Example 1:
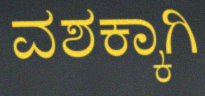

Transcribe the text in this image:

ವಶಕ್ಕಾಗಿ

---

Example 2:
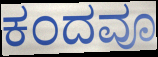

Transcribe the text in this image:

ಕಂದವೂ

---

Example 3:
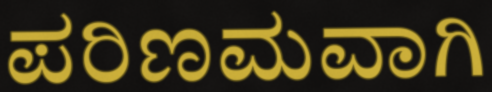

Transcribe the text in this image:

ಪರಿಣಮವಾಗಿ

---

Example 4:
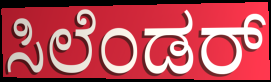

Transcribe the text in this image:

ಸಿಲೆಂಡರ್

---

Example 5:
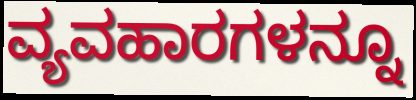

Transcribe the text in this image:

ವ್ಯವಹಾರಗಳನ್ನೂ